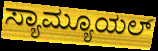
ಸ್ಯಾಮ್ಯೂಯಲ್